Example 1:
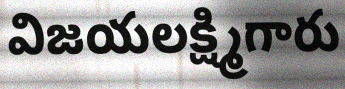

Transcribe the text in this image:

విజయలక్ష్మిగారు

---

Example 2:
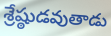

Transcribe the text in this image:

శ్రేష్ఠుడవుతాడు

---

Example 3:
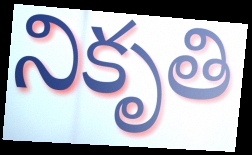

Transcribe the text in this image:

నికృతి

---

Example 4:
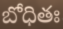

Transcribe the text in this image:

బోధితః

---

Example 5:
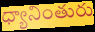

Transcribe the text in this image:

ధ్యానింతురు